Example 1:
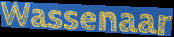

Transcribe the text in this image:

Wassenaar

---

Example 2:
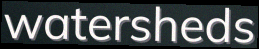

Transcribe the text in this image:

watersheds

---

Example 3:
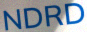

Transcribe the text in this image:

NDRD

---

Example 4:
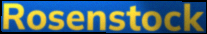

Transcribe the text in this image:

Rosenstock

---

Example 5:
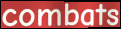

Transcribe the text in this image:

combats